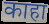
काहा